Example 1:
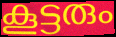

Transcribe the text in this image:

കൂട്ടരും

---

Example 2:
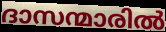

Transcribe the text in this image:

ദാസന്മാരിൽ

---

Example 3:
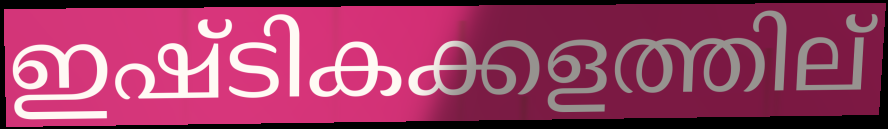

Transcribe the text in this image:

ഇഷ്ടികക്കളത്തില്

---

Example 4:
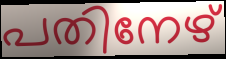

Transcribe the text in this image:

പതിനേഴ്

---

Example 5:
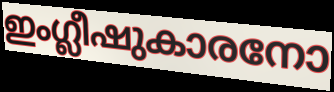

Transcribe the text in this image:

ഇംഗ്ലീഷുകാരനോ